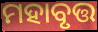
ମହାବୃତ୍ତ